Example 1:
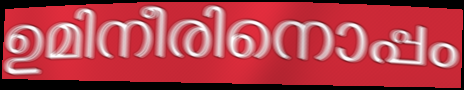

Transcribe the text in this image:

ഉമിനീരിനൊപ്പം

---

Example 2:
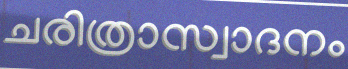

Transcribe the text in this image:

ചരിത്രാസ്വാദനം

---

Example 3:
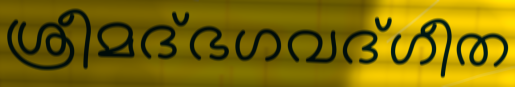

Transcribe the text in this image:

ശ്രീമദ്ഭഗവദ്ഗീത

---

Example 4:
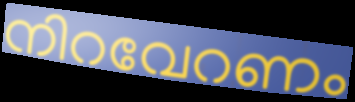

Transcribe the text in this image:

നിറവേറണം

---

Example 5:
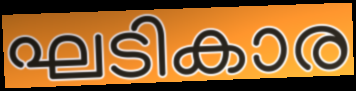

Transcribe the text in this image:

ഘടികാര